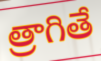
త్రాగితే